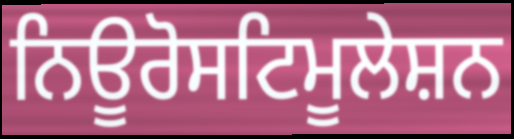
ਨਿਊਰੋਸਟਿਮੂਲੇਸ਼ਨ